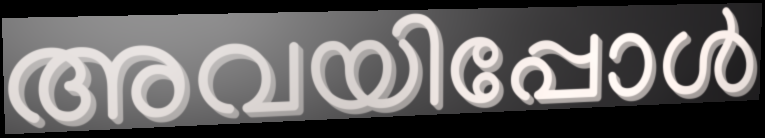
അവയിപ്പോൾ